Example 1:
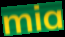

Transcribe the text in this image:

mia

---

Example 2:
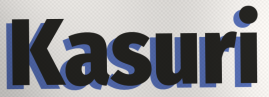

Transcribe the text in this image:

Kasuri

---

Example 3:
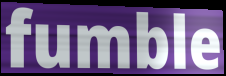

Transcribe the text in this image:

fumble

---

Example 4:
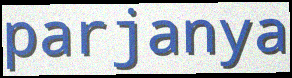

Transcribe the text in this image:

parjanya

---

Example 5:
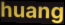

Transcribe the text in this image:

huang